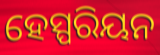
ହେସ୍ପରିୟନ